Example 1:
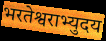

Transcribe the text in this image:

भरतेश्वराभ्युदय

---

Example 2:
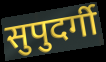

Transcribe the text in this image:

सुपुदर्गी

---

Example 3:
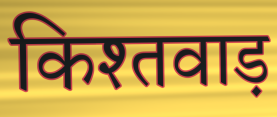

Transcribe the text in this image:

किश्तवाड़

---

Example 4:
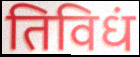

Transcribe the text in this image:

तिविधं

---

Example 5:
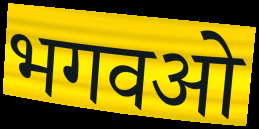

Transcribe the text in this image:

भगवओ